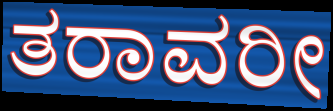
ತರಾವರೀ